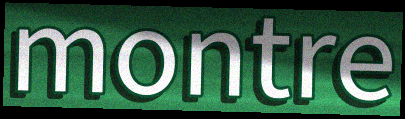
montre